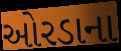
ઓરડાના